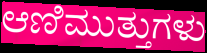
ಆಣಿಮುತ್ತುಗಳು